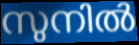
സുനിൽ